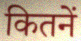
कितनें